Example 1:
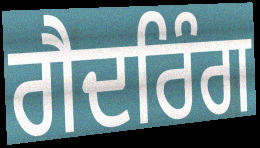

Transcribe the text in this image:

ਗੈਦਰਿੰਗ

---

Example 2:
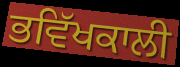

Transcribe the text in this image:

ਭਵਿੱਖਕਾਲੀ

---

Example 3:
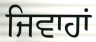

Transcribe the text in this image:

ਜਿਵਾਹਾਂ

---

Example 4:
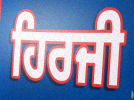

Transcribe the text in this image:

ਹਿਰਜੀ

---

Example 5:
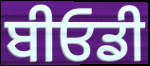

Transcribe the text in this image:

ਬੀਓਡੀ